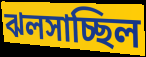
ঝলসাচ্ছিল